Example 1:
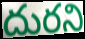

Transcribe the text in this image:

దురని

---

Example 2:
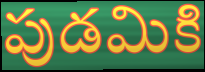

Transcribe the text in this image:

పుడమికి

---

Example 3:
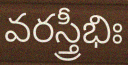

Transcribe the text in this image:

వరస్త్రీభిః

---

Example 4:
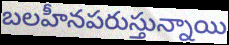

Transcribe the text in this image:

బలహీనపరుస్తున్నాయి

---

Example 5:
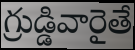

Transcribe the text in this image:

గ్రుడ్డివారైతే